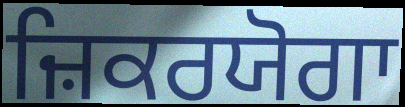
ਜ਼ਿਕਰਯੋਗਾ